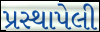
પ્રસ્થાપેલી